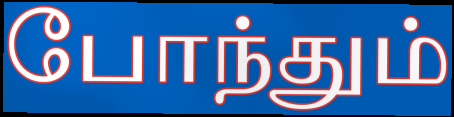
போந்தும்